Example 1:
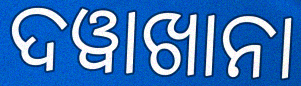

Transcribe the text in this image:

ଦୱାଖାନା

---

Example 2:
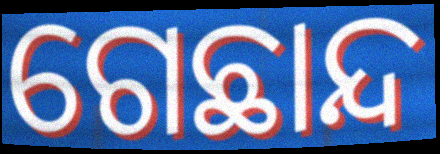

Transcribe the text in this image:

ଗେଛାନ୍ଦ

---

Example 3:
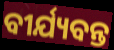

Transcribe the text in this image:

ବୀର୍ଯ୍ୟବନ୍ତ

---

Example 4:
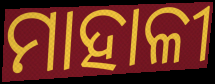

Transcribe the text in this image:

ମାହାଳୀ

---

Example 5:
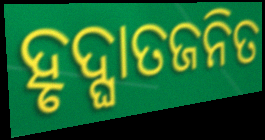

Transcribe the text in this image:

ହୃଦ୍ଘାତଜନିତ